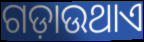
ଗଡ଼ାଉଥାଏ